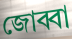
জোব্বা